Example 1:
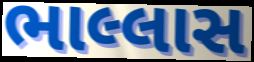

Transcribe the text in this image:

ભાલ્લાસ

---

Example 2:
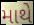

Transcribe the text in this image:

માથે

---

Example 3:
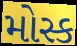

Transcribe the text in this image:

મોસ્ક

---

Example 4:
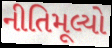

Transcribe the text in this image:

નીતિમૂલ્યો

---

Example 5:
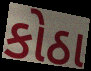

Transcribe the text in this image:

કોઠા